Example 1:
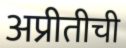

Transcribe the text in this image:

अप्रीतीची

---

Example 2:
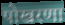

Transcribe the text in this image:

पोखरणा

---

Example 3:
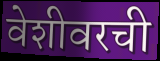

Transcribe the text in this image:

वेशीवरची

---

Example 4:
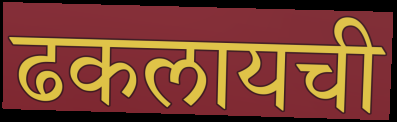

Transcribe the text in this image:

ढकलायची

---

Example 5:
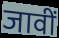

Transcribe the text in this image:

जावीं